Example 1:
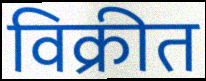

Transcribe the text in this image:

विक्रीत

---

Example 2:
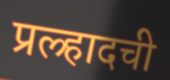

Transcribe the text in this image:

प्रल्हादची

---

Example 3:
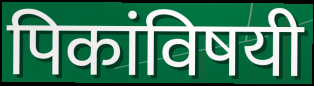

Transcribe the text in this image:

पिकांविषयी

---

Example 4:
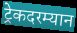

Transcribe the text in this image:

ट्रेकदरम्यान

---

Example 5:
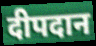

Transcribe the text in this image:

दीपदान